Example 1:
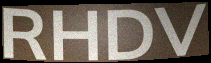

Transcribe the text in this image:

RHDV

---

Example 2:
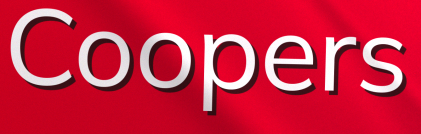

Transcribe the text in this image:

Coopers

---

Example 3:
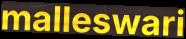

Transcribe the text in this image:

malleswari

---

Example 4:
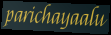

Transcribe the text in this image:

parichayaalu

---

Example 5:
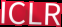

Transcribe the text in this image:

ICLR